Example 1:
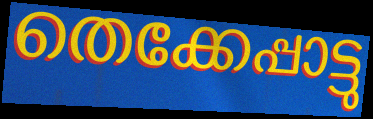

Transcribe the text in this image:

തെക്കേപ്പാട്ടു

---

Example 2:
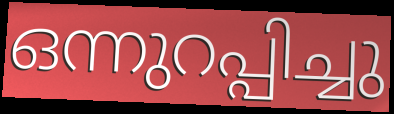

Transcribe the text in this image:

ഒന്നുറപ്പിച്ചു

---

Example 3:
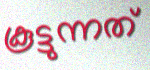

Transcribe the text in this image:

കൂട്ടുന്നത്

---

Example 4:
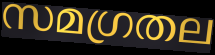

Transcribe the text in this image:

സമഗ്രതല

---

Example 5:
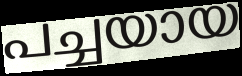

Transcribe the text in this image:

പച്ചയായ